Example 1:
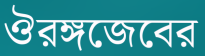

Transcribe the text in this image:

ঔরঙ্গজেবের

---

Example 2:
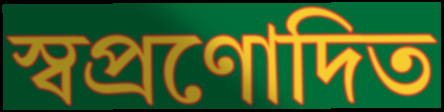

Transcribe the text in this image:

স্বপ্রণোদিত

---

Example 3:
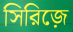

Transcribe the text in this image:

সিরিজ়ে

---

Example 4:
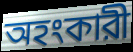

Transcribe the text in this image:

অহংকারী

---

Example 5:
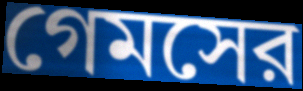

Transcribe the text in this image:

গেমসের